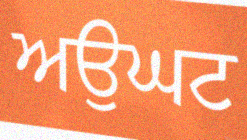
ਅਉਘਟ